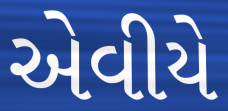
એવીયે